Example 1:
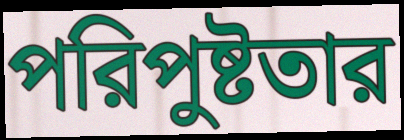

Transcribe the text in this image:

পরিপুষ্টতার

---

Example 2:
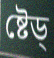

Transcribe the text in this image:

ষ্টেড্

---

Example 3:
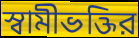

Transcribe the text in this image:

স্বামীভক্তির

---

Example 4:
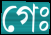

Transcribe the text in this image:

গেঃ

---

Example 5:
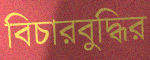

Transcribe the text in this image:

বিচারবুদ্ধির